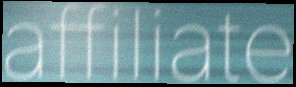
affiliate